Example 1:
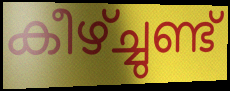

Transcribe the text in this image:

കീഴ്ച്ചുണ്ട്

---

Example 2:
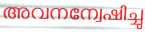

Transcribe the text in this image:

അവനന്വേഷിച്ചു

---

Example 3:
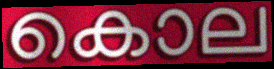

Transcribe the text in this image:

കൊല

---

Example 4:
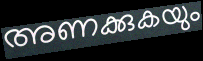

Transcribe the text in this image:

അണക്കുകയും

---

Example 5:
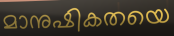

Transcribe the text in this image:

മാനുഷികതയെ